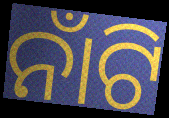
ନାଁଟି